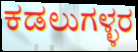
ಕಡಲುಗಳ್ಳರ